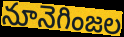
నూనెగింజల